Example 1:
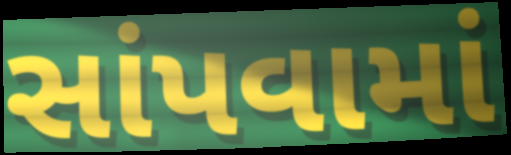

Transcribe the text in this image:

સાંપવામાં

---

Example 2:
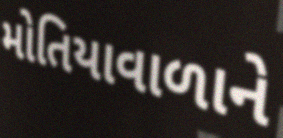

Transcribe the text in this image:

મોતિયાવાળાને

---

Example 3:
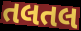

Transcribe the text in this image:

તલતલ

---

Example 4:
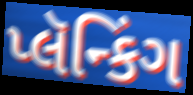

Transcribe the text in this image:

પ્લૅન્કિંગ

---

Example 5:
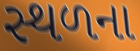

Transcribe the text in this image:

સ્થળના